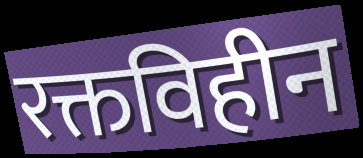
रक्तविहीन